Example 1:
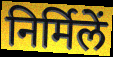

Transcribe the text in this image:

निर्मिलें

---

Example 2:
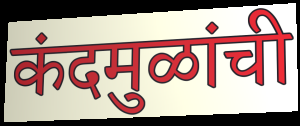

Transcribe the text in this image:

कंदमुळांची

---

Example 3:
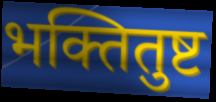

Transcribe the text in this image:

भक्तितुष्ट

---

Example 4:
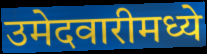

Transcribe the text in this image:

उमेदवारीमध्ये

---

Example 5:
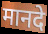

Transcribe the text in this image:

मानदे